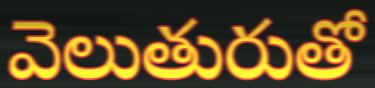
వెలుతురుతో